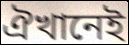
ঐখানেই